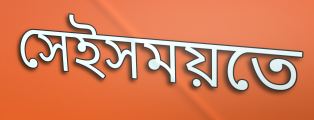
সেইসময়তে